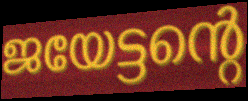
ജയേട്ടന്റെ